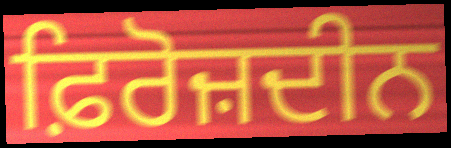
ਫ਼ਿਰੋਜ਼ਦੀਨ